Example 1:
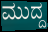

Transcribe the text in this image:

ಮುದ್ದ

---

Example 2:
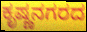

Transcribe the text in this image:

ಕೃಷ್ಣನಗರದ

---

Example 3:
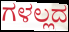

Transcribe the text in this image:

ಗಳಲ್ಲದ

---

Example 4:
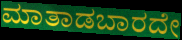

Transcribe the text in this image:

ಮಾತಾಡಬಾರದೇ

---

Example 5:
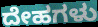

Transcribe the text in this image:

ದೇಹಗಳು